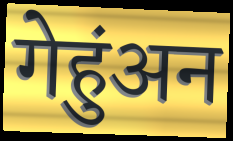
गेहुंअन